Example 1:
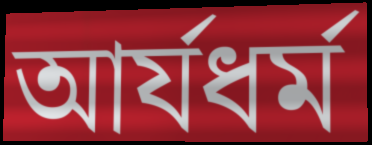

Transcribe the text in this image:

আর্যধর্ম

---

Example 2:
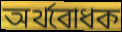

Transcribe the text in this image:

অর্থবোধক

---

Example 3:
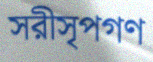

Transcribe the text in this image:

সরীসৃপগণ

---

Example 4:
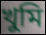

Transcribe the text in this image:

খুমি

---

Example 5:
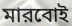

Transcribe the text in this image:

মারবোই